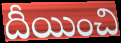
దీయించి